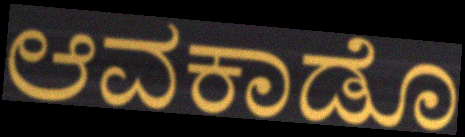
ಆವಕಾಡೊ